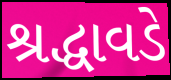
શ્રદ્ધાવડે